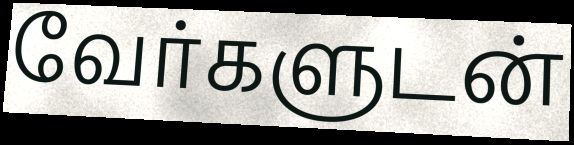
வேர்களுடன்